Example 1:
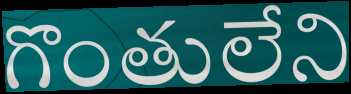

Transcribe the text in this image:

గొంతులేని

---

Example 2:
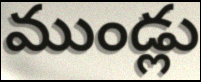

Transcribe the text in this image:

ముండ్లు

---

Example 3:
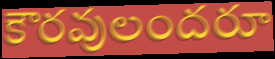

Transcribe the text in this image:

కౌరవులందరూ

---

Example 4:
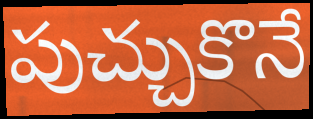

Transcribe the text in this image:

పుచ్చుకొనే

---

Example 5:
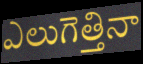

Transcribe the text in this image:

ఎలుగెత్తినా